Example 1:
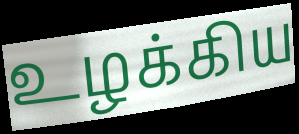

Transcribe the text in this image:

உழக்கிய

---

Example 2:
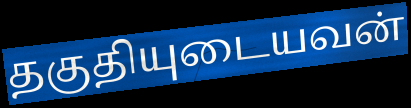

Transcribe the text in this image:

தகுதியுடையவன்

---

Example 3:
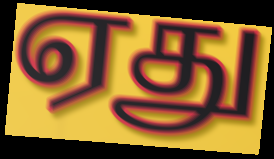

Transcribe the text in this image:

ஏது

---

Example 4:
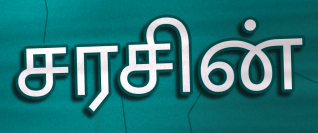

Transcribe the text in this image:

சரசின்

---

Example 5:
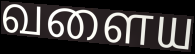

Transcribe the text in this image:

வளைய